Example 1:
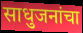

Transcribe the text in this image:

साधुजनांचा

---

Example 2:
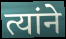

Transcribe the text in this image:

त्यांने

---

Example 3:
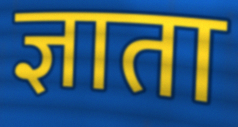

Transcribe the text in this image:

ज्ञाता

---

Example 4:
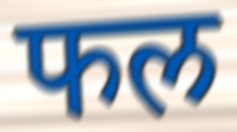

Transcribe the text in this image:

फल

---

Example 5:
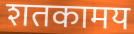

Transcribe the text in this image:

शतकामय